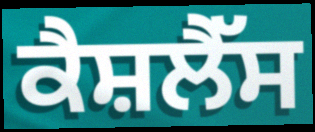
ਕੈਸ਼ਲੈੱਸ